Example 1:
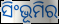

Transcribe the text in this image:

ସିଂଭୂମିର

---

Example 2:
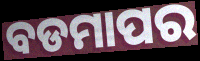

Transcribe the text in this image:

ବଡମାପର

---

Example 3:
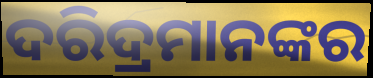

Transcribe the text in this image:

ଦରିଦ୍ରମାନଙ୍କର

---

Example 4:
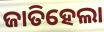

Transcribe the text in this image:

ଜାତିହେଲା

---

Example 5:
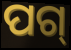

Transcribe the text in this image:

ପଗ୍